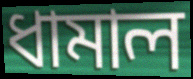
ধামাল